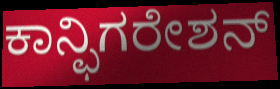
ಕಾನ್ಫಿಗರೇಶನ್